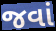
જવાં